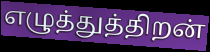
எழுத்துத்திறன்